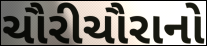
ચૌરીચૌરાનો